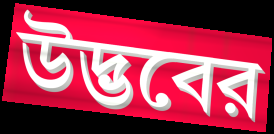
উদ্ভবের